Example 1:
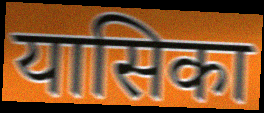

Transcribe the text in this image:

यासिका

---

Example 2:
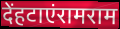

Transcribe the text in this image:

देंहटाएंरामराम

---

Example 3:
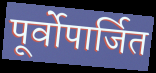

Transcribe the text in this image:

पूर्वोपार्जित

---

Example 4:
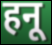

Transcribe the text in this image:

हनू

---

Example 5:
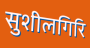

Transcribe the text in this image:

सुशीलगिरि